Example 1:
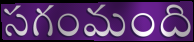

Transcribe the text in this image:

సగంమంది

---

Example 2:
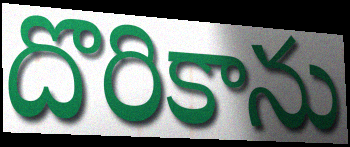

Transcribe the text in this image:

దొరికాను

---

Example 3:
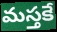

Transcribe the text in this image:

మస్తకే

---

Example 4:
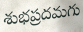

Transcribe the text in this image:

శుభప్రదమగు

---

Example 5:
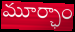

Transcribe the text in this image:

మూర్ఛాం